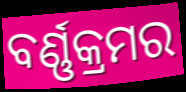
ବର୍ଣ୍ଣକ୍ରମର